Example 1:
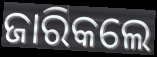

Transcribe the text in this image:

ଜାରିକଲେ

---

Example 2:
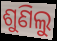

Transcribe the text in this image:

ଶୁଣିଲୁ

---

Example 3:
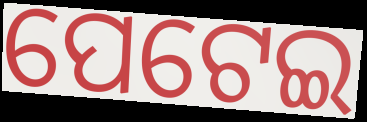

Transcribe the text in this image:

ପେଟେଇ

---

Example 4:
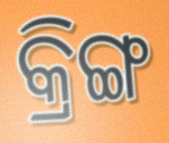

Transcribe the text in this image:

କ୍ରିଙ୍ଗ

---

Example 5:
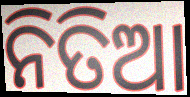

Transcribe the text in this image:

ନିତିଆ